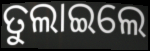
ତୁଲାଇଲେ